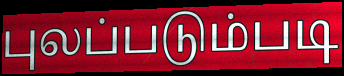
புலப்படும்படி